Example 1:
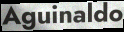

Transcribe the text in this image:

Aguinaldo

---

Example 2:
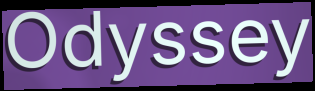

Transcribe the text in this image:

Odyssey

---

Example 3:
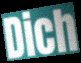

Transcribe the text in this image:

Dich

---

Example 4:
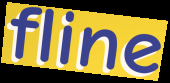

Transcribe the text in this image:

fline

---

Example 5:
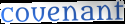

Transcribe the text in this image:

couenant